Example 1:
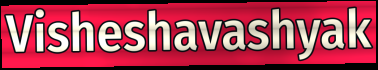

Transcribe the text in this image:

Visheshavashyak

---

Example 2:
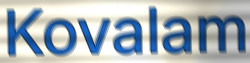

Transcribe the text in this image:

Kovalam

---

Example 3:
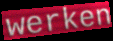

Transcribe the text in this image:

werken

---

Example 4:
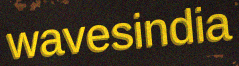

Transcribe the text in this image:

wavesindia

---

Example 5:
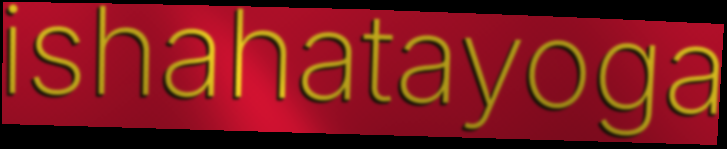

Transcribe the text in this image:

ishahatayoga